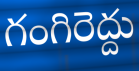
గంగిరెద్దు